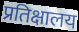
प्रतिक्षालय